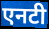
एनटी